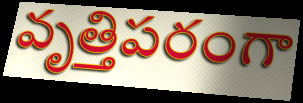
వృత్తిపరంగా